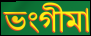
ভংগীমা